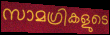
സാമഗ്രികളുടെ